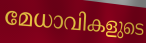
മേധാവികളുടെ